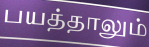
பயத்தாலும்